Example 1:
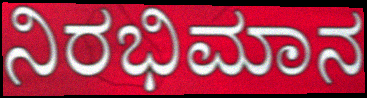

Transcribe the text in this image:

ನಿರಭಿಮಾನ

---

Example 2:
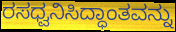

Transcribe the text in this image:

ರಸಧ್ವನಿಸಿದ್ಧಾಂತವನ್ನು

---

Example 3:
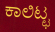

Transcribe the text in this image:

ಕಾಲಿಟ್ಟ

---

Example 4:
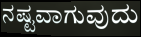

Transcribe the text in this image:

ನಷ್ಟವಾಗುವುದು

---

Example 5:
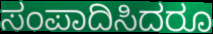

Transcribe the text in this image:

ಸಂಪಾದಿಸಿದರೂ